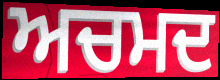
ਅਚਮਦ